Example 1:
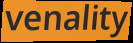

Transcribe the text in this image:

venality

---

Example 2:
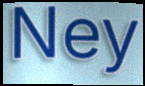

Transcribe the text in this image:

Ney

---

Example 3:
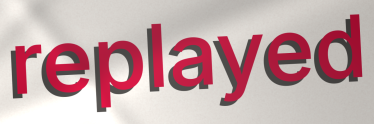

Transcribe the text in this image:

replayed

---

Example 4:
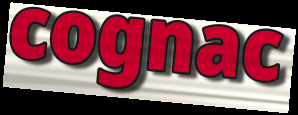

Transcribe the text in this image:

cognac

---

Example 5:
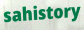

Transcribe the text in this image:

sahistory